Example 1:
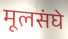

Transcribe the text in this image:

मूलसंघे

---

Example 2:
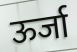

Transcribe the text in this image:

ऊर्जा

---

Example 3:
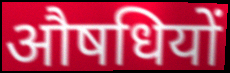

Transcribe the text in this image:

औषधियों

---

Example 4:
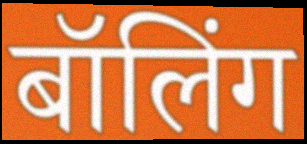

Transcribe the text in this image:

बॉलिंग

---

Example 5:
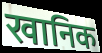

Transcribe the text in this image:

खानिक